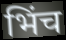
भिंच